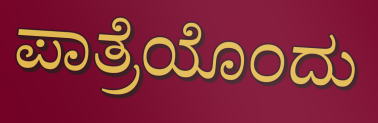
ಪಾತ್ರೆಯೊಂದು